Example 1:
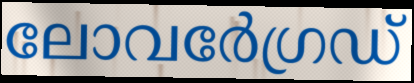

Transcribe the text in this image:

ലോവർേഗ്രഡ്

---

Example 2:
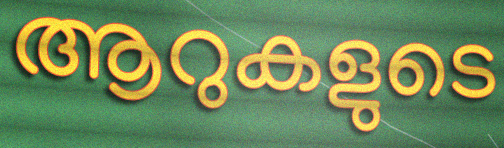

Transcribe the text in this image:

ആറുകളുടെ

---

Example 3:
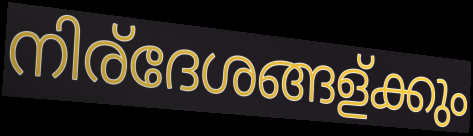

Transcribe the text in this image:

നിര്ദേശങ്ങള്ക്കും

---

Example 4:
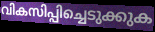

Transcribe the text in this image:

വികസിപ്പിച്ചെടുക്കുക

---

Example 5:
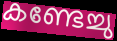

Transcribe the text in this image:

കണ്ടേച്ചു